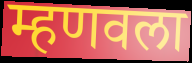
म्हणवला